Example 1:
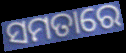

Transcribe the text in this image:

ସମତାରେ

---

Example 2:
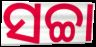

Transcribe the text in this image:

ସଚ୍ଚା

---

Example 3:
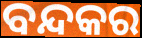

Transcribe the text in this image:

ବନ୍ଦକର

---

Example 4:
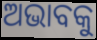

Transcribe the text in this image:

ଅଭାବକୁ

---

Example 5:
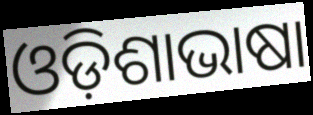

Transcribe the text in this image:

ଓଡ଼ିଶାଭାଷା